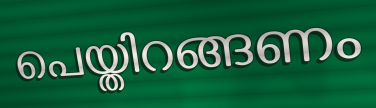
പെയ്തിറങ്ങണം